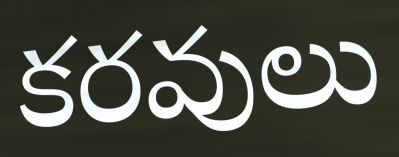
కరవులు